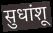
सुधांशू